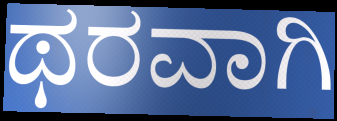
ಥರವಾಗಿ